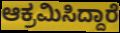
ಆಕ್ರಮಿಸಿದ್ದಾರೆ